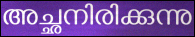
അച്ഛനിരിക്കുന്നു